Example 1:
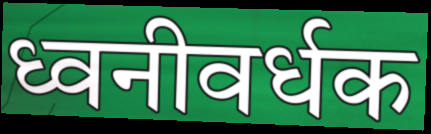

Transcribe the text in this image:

ध्वनीवर्धक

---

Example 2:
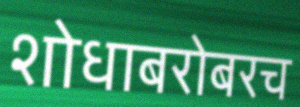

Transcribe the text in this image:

शोधाबरोबरच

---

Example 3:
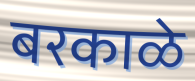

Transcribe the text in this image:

बरकाळे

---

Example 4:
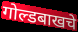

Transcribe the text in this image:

गोल्डबाखचे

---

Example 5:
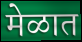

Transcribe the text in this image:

मेळात